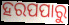
ହରପପାରୁ